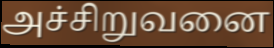
அச்சிறுவனை